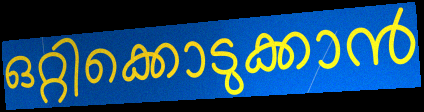
ഒറ്റിക്കൊടുക്കാൻ